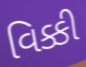
વિક્કી